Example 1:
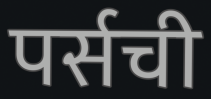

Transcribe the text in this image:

पर्सची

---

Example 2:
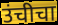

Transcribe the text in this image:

उंचीचा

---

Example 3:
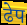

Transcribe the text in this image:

ढेप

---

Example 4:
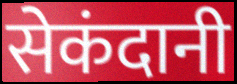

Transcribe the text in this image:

सेकंदानी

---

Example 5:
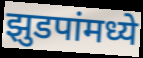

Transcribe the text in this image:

झुडपांमध्ये